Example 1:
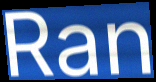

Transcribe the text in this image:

Ran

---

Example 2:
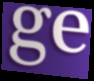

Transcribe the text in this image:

ge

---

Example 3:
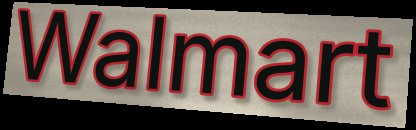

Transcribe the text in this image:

Walmart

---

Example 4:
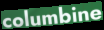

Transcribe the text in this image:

columbine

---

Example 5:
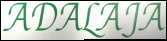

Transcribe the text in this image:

ADALAJA